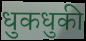
धुकधुकी